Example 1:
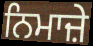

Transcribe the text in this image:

ਨਿਮਾਜ਼ੇ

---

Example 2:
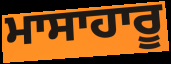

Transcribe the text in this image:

ਮਾਸਾਹਾਰੂ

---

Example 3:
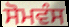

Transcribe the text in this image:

ਸੋਮਵੰਸ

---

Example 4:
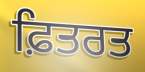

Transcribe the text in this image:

ਫ਼ਿਤਰਤ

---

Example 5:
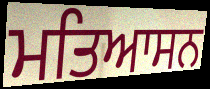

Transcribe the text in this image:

ਮਤਿਆਸਨ